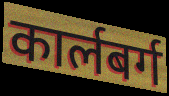
कार्लबर्ग